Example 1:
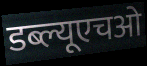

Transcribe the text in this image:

डब्ल्यूएचओ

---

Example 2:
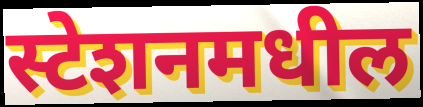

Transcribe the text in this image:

स्टेशनमधील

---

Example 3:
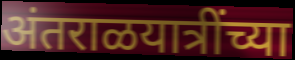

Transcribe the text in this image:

अंतराळयात्रींच्या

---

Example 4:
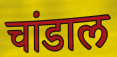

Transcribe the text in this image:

चांडाल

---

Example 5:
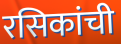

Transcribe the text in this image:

रसिकांची